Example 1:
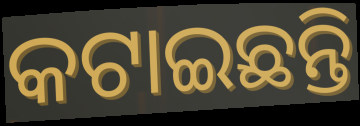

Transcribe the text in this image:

କଟାଇଛନ୍ତି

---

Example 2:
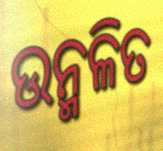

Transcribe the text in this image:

ଉନ୍ମଳିତ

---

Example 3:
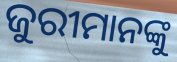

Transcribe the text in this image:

ଜୁରୀମାନଙ୍କୁ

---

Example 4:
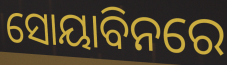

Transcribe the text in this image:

ସୋୟାବିନରେ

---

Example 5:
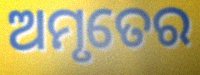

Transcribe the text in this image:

ଅମୃତେର